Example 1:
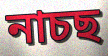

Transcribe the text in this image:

নাচছ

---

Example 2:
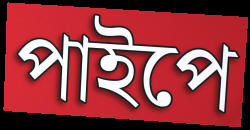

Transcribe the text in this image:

পাইপে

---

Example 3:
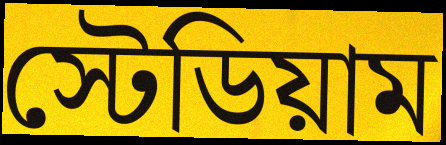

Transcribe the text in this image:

স্টেডিয়াম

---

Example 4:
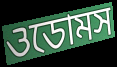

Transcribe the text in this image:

ওডোমস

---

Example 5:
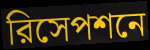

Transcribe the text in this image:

রিসেপশনে